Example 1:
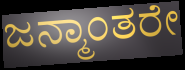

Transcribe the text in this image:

ಜನ್ಮಾಂತರೇ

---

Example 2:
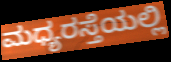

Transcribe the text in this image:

ಮಧ್ಯರಸ್ತೆಯಲ್ಲಿ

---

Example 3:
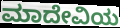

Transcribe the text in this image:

ಮಾದೇವಿಯ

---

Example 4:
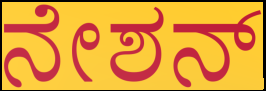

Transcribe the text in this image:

ನೇಶನ್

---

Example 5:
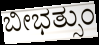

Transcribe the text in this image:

ಬೀಭತ್ಸುಂ